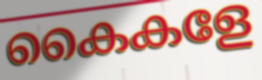
കൈകളേ